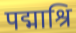
पद्माश्रि